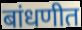
बांधणीत